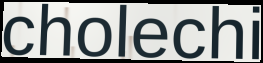
cholechi